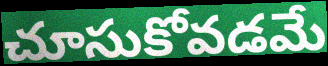
చూసుకోవడమే